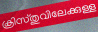
ക്രിസ്തുവിലേക്കുള്ള